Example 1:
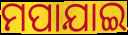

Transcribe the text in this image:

ମପାଯାଇ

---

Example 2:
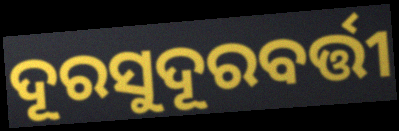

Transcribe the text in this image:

ଦୂରସୁଦୂରବର୍ତ୍ତୀ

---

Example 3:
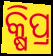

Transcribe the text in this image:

କ୍ଷିପ୍ର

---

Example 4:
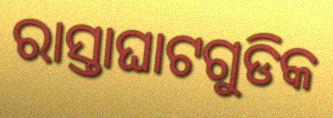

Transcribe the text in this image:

ରାସ୍ତାଘାଟଗୁଡିକ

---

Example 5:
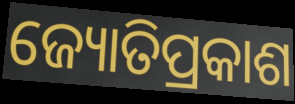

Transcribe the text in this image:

ଜ୍ୟୋତିପ୍ରକାଶ